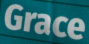
Grace